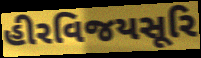
હીરવિજયસૂરિ